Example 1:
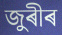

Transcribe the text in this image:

জুৰীৰ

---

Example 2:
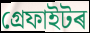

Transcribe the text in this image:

গ্ৰেফাইটৰ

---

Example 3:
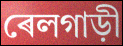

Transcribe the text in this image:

ৰেলগাড়ী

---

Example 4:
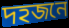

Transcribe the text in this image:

দহজনে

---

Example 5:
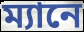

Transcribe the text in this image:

ম্যানে